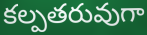
కల్పతరువుగా